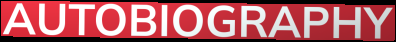
AUTOBIOGRAPHY